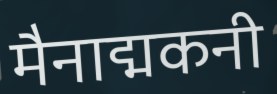
मैनाद्मकनी